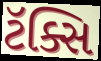
ટૅક્સિ